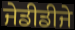
ਜੇਡੀਡੀਜੇ